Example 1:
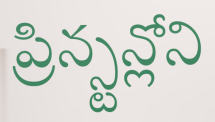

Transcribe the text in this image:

ప్రిన్స్టన్లోని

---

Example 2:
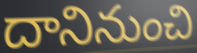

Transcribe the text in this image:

దానినుంచి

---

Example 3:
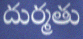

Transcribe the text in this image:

దుర్మతు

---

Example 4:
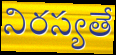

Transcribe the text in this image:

నిరస్యతే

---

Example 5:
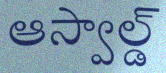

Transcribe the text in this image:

ఆస్వాల్డ్